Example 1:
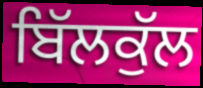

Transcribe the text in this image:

ਬਿੱਲਕੁੱਲ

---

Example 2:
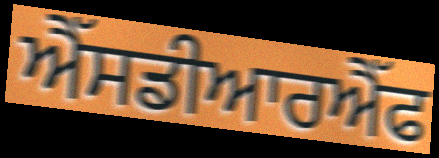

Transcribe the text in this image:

ਐੱਸਡੀਆਰਐੱਫ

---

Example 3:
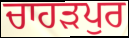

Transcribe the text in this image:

ਚਾਹਡ਼ਪੁਰ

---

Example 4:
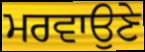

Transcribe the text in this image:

ਮਰਵਾਉਣੇ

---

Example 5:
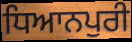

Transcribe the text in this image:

ਧਿਆਨਪੁਰੀ